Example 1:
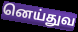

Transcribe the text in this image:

னெய்துவ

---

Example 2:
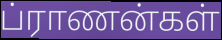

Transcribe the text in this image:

ப்ராணன்கள்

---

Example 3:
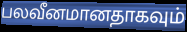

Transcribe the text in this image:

பலவீனமானதாகவும்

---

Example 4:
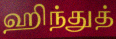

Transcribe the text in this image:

ஹிந்துத்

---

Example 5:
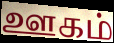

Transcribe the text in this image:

ஊகம்